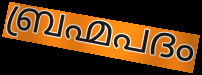
ബ്രഹ്മപദം